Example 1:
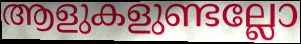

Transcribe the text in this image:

ആളുകളുണ്ടല്ലോ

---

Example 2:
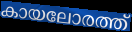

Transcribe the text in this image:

കായലോരത്ത്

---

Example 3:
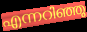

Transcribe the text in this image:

എന്നറിഞ്ഞു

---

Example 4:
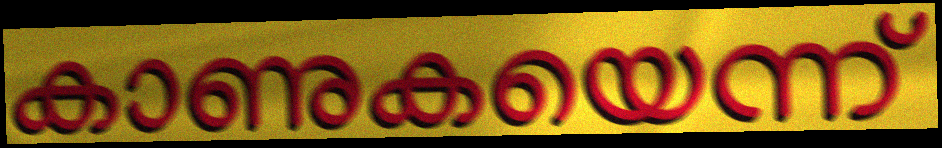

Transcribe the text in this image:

കാണുകയെന്ന്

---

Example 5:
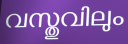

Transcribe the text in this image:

വസ്തുവിലും